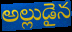
అల్లుడైన